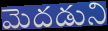
మెదడుని